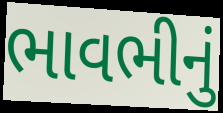
ભાવભીનું